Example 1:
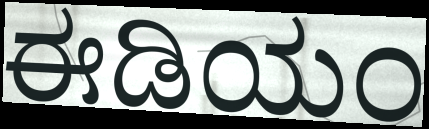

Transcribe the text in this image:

ಈಡಿಯಂ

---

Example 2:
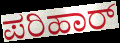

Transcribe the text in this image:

ಪರಿಹಾರ್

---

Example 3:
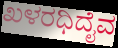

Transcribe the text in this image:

ಖಳರಧಿದೈವ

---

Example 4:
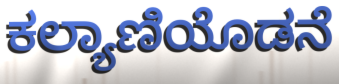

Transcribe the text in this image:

ಕಲ್ಯಾಣಿಯೊಡನೆ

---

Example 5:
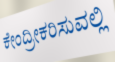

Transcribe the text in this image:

ಕೇಂದ್ರೀಕರಿಸುವಲ್ಲಿ